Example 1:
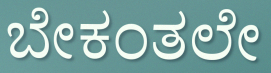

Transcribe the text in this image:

ಬೇಕಂತಲೇ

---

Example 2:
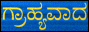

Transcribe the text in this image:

ಗ್ರಾಹ್ಯವಾದ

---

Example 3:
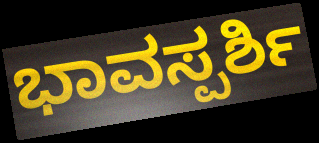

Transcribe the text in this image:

ಭಾವಸ್ಪರ್ಶಿ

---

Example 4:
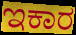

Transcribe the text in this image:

ಇಕಾರ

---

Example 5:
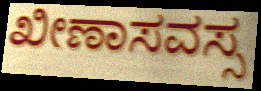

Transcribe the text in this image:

ಖೀಣಾಸವಸ್ಸ